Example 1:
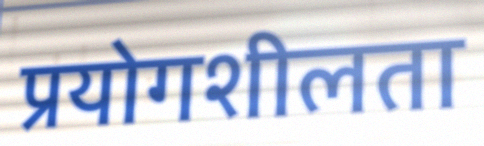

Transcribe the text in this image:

प्रयोगशीलता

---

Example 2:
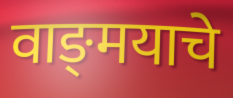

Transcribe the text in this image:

वाङ्‍मयाचे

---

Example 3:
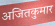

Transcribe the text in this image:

अजितकुमार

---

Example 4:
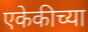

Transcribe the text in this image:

एकेकीच्या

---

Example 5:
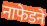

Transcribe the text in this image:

नाफेडने